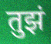
तुझं